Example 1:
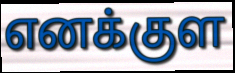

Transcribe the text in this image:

எனக்குள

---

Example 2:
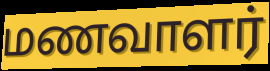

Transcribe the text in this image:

மணவாளர்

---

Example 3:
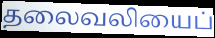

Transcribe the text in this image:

தலைவலியைப்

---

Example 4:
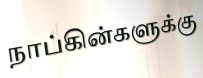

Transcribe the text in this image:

நாப்கின்களுக்கு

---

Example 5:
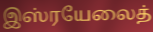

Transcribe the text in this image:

இஸ்ரயேலைத்